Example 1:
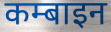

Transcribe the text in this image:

कम्बाइन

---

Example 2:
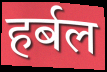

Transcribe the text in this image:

हर्बल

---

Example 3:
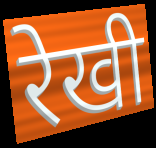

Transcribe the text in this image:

रेखी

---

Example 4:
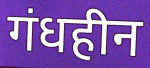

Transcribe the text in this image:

गंधहीन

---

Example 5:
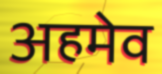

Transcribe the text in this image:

अहमेव